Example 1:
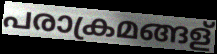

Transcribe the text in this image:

പരാക്രമങ്ങള്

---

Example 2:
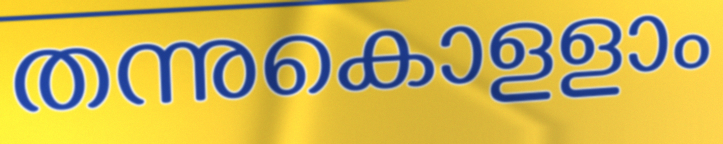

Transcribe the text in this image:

തന്നുകൊളളാം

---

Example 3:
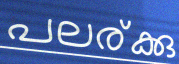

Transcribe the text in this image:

പലര്ക്കു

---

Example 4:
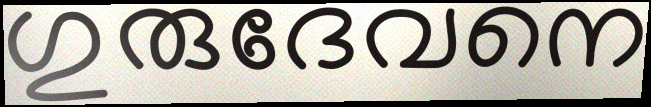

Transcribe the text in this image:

ഗുരുദേവനെ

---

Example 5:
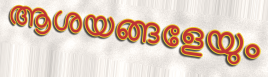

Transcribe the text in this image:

ആശയങ്ങളേയും